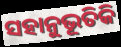
ସହାନୁଭୂତିକି